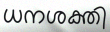
ധനശക്തി